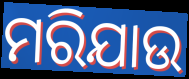
ମରିଯାଉ